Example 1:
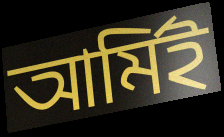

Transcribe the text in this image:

আর্মিই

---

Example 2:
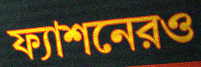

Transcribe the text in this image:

ফ্যাশনেরও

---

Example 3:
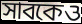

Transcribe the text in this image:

সাবকেও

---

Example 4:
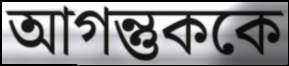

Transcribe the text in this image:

আগন্তুককে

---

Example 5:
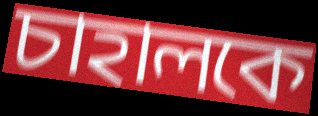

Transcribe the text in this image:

চাহালকে